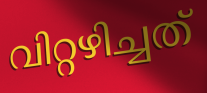
വിറ്റഴിച്ചത്